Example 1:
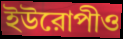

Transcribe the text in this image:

ইউরোপীও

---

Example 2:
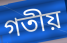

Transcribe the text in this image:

গতীয়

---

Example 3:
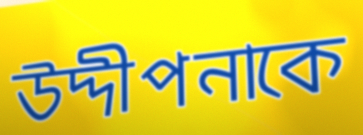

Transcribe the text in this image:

উদ্দীপনাকে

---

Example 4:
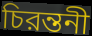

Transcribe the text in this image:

চিরন্তনী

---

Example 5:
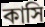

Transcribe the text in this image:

কাসি